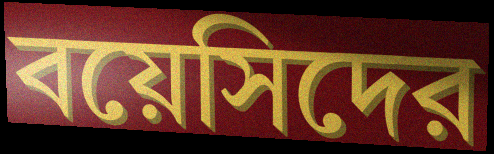
বয়েসিদের